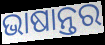
ଭାଷାନ୍ତର